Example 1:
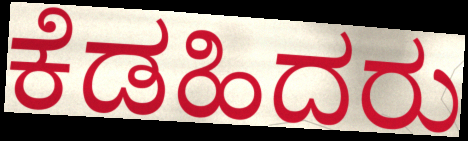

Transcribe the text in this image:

ಕೆಡಹಿದರು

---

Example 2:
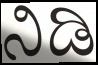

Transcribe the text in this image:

ನಿಡಿ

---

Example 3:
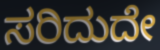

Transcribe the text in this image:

ಸರಿದುದೇ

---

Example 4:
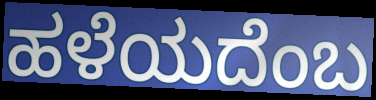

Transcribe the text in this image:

ಹಳೆಯದೆಂಬ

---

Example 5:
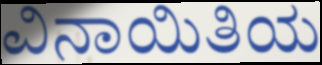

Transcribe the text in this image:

ವಿನಾಯಿತಿಯ